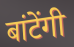
बांटेंगी